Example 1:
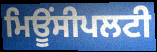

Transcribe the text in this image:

ਮਿਊਂਸੀਪਲਟੀ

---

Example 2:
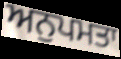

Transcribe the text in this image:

ਅਨੁਪਮਤਾ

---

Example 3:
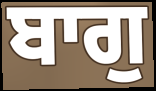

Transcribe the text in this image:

ਬਾਗੁ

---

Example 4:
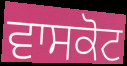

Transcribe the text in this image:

ਵਾਸਕੋਟ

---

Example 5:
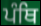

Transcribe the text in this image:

ਪੰਥਿ